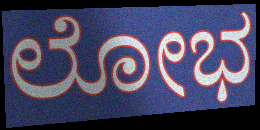
ಲೋಭ